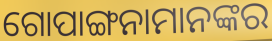
ଗୋପାଙ୍ଗନାମାନଙ୍କର